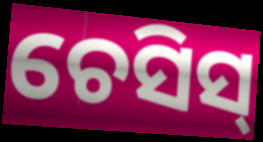
ଚେସିସ୍